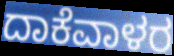
ದಾಕೆವಾಳರ